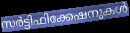
സർട്ടിഫിക്കേഷനുകൾ